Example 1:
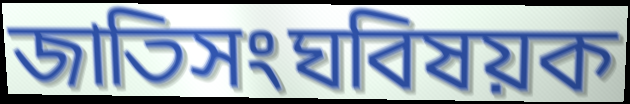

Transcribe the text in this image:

জাতিসংঘবিষয়ক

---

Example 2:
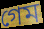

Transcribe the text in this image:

গেম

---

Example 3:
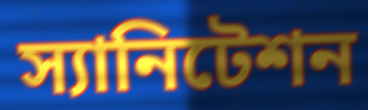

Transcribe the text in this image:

স্যানিটেশন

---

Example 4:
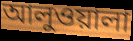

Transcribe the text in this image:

আলুওয়ালা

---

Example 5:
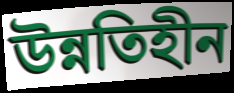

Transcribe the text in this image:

উন্নতিহীন